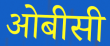
ओबीसी